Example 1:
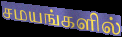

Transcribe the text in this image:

சமயங்களில்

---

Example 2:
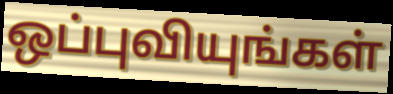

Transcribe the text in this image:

ஒப்புவியுங்கள்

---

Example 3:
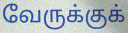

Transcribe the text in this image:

வேருக்குக்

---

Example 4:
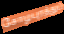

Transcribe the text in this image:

சோழபுரத்துப்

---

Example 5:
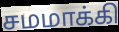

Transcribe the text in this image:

சமமாக்கி